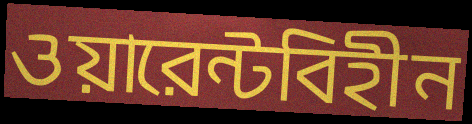
ওয়ারেন্টবিহীন